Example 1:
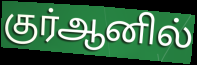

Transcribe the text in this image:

குர்ஆனில்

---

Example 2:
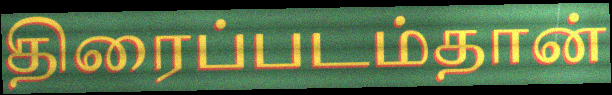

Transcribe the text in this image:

திரைப்படம்தான்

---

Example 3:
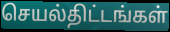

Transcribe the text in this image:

செயல்திட்டங்கள்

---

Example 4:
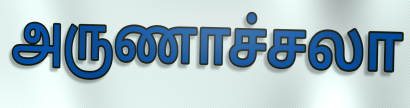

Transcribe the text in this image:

அருணாச்சலா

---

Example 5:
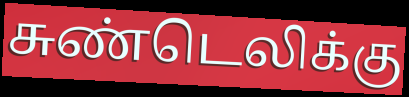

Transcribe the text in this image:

சுண்டெலிக்கு